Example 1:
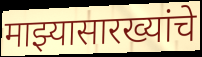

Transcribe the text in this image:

माझ्यासारख्यांचे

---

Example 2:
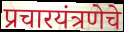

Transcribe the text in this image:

प्रचारयंत्रणेचे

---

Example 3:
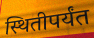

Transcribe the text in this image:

स्थितीपर्यंत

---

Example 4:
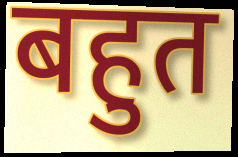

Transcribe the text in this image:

बहुत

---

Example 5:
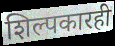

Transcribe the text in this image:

शिल्पकारही